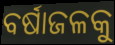
ବର୍ଷାଜଳକୁ